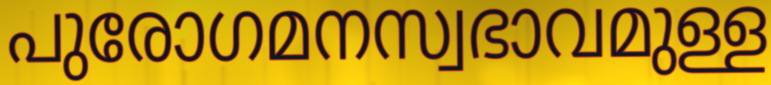
പുരോഗമനസ്വഭാവമുള്ള